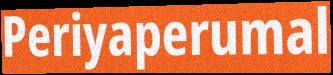
Periyaperumal